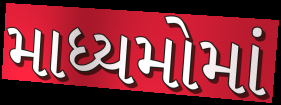
માધ્યમોમાં